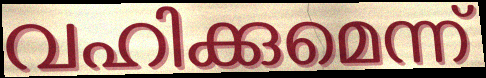
വഹിക്കുമെന്ന്